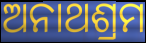
ଅନାଥଶ୍ରମ